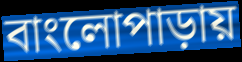
বাংলোপাড়ায়